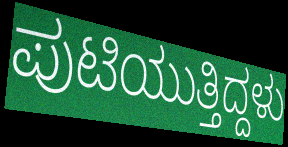
ಪುಟಿಯುತ್ತಿದ್ದಳು